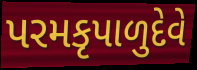
પરમકૃપાળુદેવે